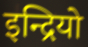
इन्द्रियो